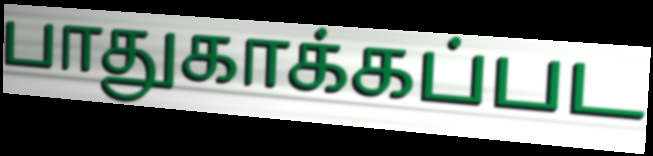
பாதுகாக்கப்பட